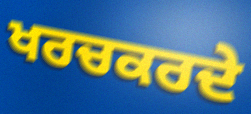
ਖਰਚਕਰਦੇ